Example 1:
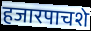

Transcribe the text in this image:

हजारपाचशे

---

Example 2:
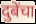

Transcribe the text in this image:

दुबेंचा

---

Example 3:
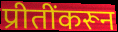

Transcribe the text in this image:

प्रीतींकरून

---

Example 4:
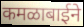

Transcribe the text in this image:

कमळाबाईने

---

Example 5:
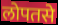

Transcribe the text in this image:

लोपतसे